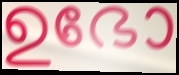
ഉഭോ